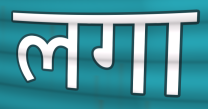
लगा